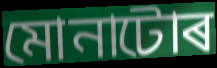
মোনাটোৰ